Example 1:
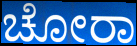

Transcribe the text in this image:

ಚೋರಾ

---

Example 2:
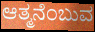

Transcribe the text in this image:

ಆತ್ಮನೆಂಬುವ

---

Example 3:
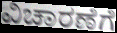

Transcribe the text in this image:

ವಿಚಾರಣೆಗೆ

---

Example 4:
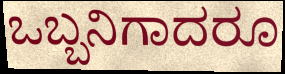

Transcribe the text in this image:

ಒಬ್ಬನಿಗಾದರೂ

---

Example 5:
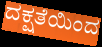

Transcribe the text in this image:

ದಕ್ಷತೆಯಿಂದ